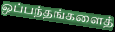
ஒப்பந்தங்களைத்